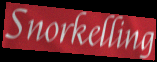
Snorkelling